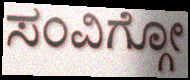
ಸಂವಿಗ್ಗೋ